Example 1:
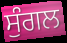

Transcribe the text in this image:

ਸੁੰਗਲ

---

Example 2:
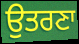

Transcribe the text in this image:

ਉਤਰਣਾ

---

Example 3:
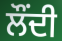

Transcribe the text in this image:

ਲੌਂਦੀ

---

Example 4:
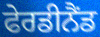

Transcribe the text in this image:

ਫੇਰਡੀਨੈਂਡ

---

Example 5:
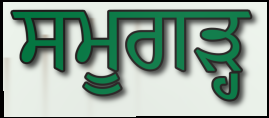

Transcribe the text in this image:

ਸਮੂਗੜ੍ਹ